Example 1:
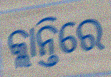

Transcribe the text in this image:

କ୍ଲାନ୍ତିରେ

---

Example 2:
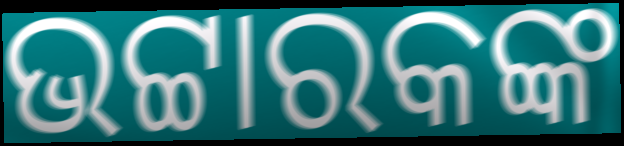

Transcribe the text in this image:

ଭଟ୍ଟାରକଙ୍କ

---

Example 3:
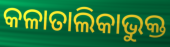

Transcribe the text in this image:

କଳାତାଲିକାଭୁକ୍ତ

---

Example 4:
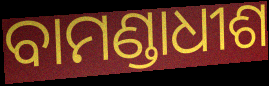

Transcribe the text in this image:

ବାମଣ୍ଡାଧୀଶ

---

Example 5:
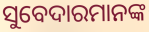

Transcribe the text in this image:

ସୁବେଦାରମାନଙ୍କ